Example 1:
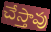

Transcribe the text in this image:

చేస్తావు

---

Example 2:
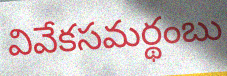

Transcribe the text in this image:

వివేకసమర్థంబు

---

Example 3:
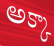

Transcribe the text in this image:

అక్కా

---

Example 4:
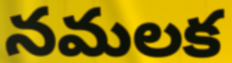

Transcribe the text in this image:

నమలక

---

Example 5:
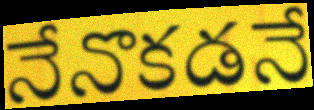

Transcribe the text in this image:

నేనొకడనే